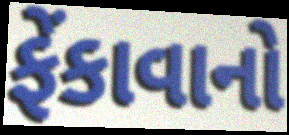
ફેંકાવાનો